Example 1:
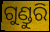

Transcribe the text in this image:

ଗୁଣ୍ଡୁରି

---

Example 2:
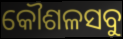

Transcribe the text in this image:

କୌଶଳସବୁ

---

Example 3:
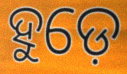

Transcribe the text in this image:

ହୁଡ଼େ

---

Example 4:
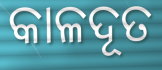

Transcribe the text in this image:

କାଳଦୂତ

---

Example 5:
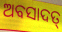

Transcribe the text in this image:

ଅବସାଦତ୍